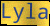
Lyla